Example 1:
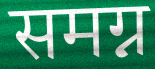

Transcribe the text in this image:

समग्न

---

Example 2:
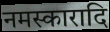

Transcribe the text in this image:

नमस्कारादि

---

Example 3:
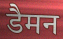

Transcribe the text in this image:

डैमन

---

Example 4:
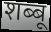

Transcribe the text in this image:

शब्बू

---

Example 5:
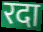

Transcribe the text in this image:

रदा